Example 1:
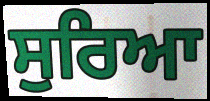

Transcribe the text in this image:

ਸੁਰਿਆ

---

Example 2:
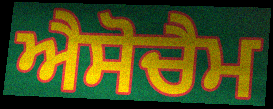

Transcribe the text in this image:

ਐਸੋਚੈਮ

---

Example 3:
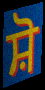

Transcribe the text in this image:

ਸ਼ੋ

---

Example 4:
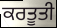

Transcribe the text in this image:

ਕਰਤੂਤੀ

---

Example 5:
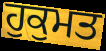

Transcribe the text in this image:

ਹੁਕੁਮਤ